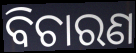
ବିଚାରଣ